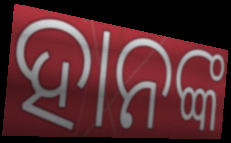
ହାନଙ୍କ